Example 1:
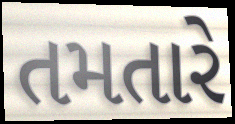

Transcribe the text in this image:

તમતારે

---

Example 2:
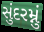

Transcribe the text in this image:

સુંદરમ્નું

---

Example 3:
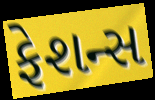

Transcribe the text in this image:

ફેશન્સ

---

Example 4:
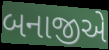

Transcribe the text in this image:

બનાજીએ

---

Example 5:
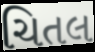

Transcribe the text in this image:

ચિતલ